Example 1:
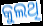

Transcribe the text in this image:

କୁଲଥି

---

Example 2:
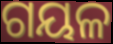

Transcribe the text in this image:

ଗୟଳ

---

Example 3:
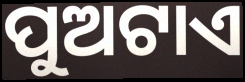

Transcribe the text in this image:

ପୁଅଟାଏ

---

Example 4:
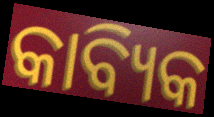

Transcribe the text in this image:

କାବ୍ୟିକ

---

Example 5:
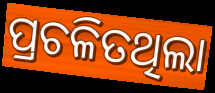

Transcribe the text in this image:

ପ୍ରଚଳିତଥିଲା